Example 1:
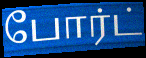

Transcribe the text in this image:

போர்ட்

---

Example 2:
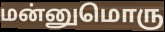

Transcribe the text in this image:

மன்னுமொரு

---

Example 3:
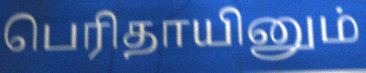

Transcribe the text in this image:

பெரிதாயினும்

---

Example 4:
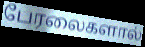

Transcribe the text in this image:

பேரலைகளால்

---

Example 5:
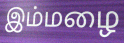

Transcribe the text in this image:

இம்மழை